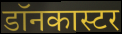
डॉनकास्टर